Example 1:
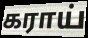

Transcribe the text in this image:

கராய்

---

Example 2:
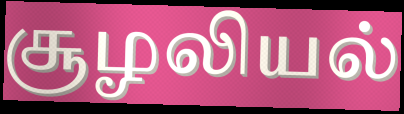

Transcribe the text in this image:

சூழலியல்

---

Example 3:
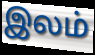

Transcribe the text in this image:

இலம்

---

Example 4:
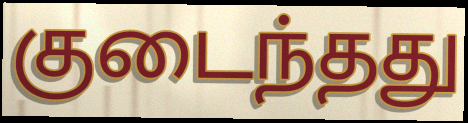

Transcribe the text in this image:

குடைந்தது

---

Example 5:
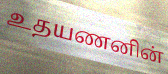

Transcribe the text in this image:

உதயணனின்